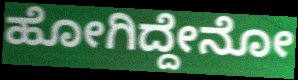
ಹೋಗಿದ್ದೇನೋ